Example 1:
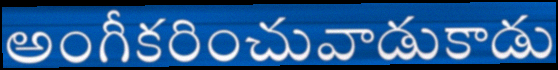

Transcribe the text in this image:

అంగీకరించువాడుకాడు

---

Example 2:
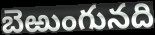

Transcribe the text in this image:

బెఱుంగునది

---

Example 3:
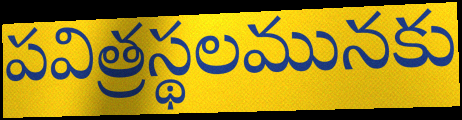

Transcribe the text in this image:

పవిత్రస్థలమునకు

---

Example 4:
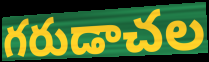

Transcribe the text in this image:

గరుడాచల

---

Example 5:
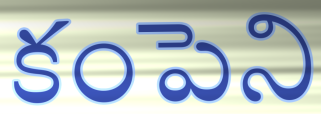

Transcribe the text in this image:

కంపెని